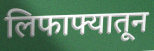
लिफाफ्यातून